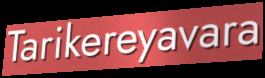
Tarikereyavara